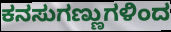
ಕನಸುಗಣ್ಣುಗಳಿಂದ